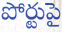
పోర్టుపై